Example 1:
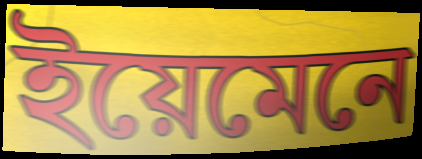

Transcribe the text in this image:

ইয়েমেনে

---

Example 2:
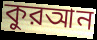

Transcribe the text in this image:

কুরআন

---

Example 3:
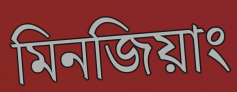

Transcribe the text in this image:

মিনজিয়াং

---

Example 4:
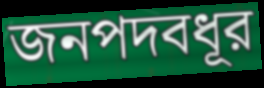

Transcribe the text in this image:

জনপদবধূর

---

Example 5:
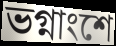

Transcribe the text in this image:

ভগ্নাংশে